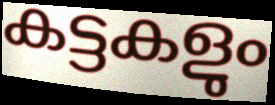
കട്ടകളും